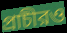
প্রাচীরও